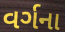
વર્ગના